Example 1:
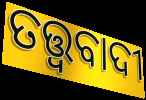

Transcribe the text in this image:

ତତ୍ତ୍ଵବାଦୀ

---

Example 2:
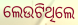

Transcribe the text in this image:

ଲେଉଟିଥିଲେ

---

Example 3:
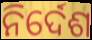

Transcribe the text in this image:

ନିର୍ଦେଶ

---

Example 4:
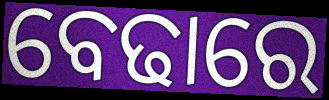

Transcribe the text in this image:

ବେଢାରେ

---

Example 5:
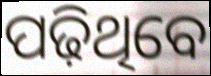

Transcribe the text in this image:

ପଢ଼ିଥିବେ